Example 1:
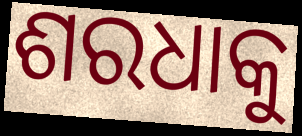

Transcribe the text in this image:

ଶରଧାକୁ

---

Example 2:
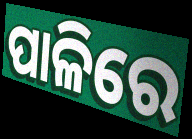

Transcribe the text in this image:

ପାଳିରେ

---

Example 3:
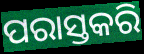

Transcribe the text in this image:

ପରାସ୍ତକରି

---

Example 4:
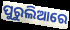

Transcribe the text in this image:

ପୁରୁଲିଆରେ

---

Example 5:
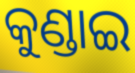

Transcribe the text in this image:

କୁଣ୍ଡାଇ